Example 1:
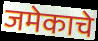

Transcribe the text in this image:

जमेकाचे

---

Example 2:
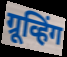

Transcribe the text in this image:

ग्रूव्हिंग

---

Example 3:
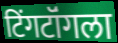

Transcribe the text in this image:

टिंगटॉंगला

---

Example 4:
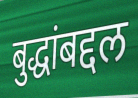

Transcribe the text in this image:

बुद्धांबद्दल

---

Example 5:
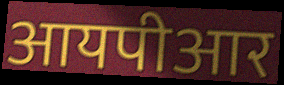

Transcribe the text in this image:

आयपीआर